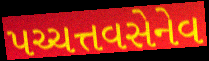
પચ્ચત્તવસેનેવ